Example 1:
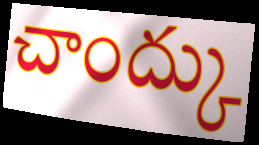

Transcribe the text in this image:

చాంద్కు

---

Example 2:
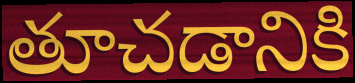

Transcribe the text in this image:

తూచడానికి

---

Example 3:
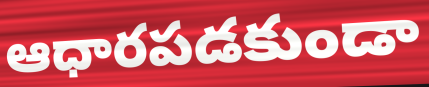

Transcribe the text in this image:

ఆధారపడకుండా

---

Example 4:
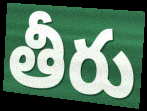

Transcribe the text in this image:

తీరు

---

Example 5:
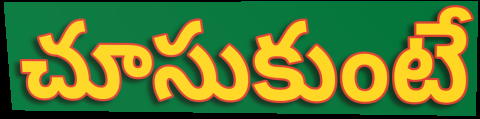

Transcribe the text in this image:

చూసుకుంటే